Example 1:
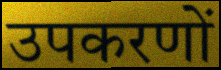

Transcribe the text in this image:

उपकरणों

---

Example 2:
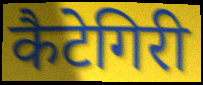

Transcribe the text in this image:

कैटेगिरी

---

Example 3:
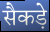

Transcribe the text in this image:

सैकड़े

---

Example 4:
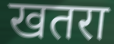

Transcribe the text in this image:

खतरा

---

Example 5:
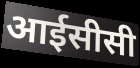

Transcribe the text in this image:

आईसीसी